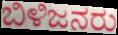
ಬಿಳಿಜನರು